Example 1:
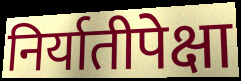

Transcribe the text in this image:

निर्यातीपेक्षा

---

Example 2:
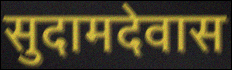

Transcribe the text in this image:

सुदामदेवास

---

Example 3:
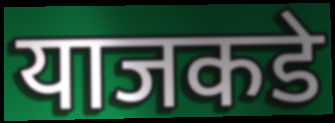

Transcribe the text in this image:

याजकडे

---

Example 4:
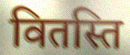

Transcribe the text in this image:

वितस्ति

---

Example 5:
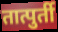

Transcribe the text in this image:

तात्पुर्ती